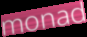
monad